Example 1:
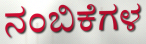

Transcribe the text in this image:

ನಂಬಿಕೆಗಳ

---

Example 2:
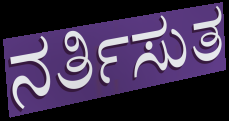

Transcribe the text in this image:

ನರ್ತಿಸುತ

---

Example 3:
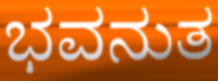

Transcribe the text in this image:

ಭವನುತ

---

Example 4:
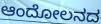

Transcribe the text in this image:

ಆಂದೋಲನದ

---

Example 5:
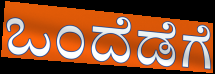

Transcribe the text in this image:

ಒಂದೆಡೆಗೆ